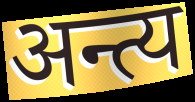
अन्त्य